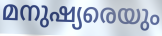
മനുഷ്യരെയും